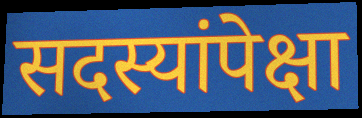
सदस्यांपेक्षा